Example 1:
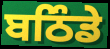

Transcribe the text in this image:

ਬਠਿੰਡੇ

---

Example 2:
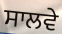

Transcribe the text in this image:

ਸਾਲਵੇ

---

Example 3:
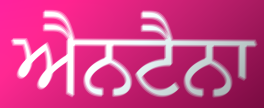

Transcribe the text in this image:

ਐਨਟੈਨਾ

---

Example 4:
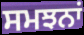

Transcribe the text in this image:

ਸਮਝਨਾਂ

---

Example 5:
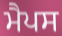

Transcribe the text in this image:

ਮੈਪਸ